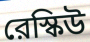
রেস্কিউ